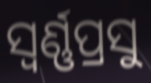
ସ୍ୱର୍ଣ୍ଣପ୍ରସୁ